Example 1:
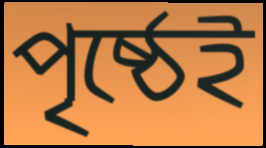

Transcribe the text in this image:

পৃষ্ঠেই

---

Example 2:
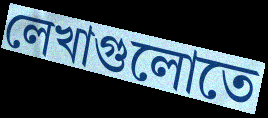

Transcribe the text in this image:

লেখাগুলোতে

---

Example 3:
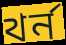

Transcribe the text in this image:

থর্ন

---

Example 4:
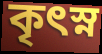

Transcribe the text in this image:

কৃৎস্ন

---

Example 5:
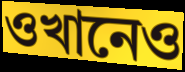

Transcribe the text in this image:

ওখানেও